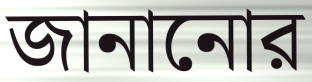
জানানোর